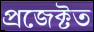
প্ৰজেক্টত